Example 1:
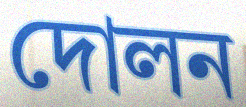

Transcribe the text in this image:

দোলন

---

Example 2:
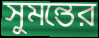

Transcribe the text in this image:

সুমন্তের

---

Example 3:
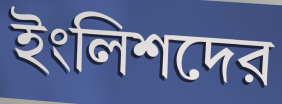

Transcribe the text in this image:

ইংলিশদের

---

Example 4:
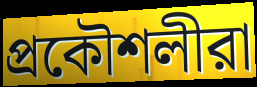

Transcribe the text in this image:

প্রকৌশলীরা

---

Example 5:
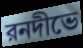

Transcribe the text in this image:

রনদীভে